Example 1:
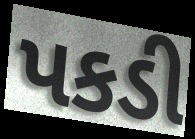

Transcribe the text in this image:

પકડી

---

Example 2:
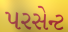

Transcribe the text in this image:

પરસેન્ટ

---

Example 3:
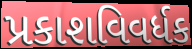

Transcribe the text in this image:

પ્રકાશવિવર્ધક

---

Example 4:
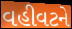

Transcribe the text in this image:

વહીવટને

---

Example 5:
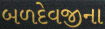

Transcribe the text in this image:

બળદેવજીના